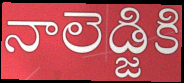
నాలెడ్జికి